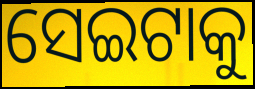
ସେଇଟାକୁ